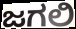
ಜಗಲಿ